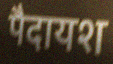
पैदायश